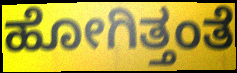
ಹೋಗಿತ್ತಂತೆ